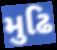
મુઢિ